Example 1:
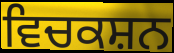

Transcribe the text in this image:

ਵਿਚਕਸ਼ਨ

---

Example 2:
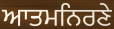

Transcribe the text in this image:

ਆਤਮਨਿਰਣੇ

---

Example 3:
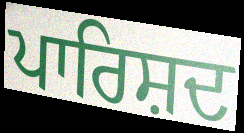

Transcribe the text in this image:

ਪਾਰਿਸ਼ਦ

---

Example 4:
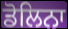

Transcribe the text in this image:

ਡੋਲਿਨਾ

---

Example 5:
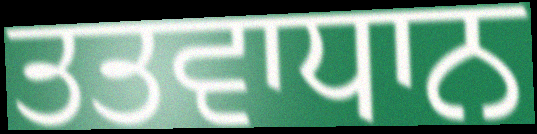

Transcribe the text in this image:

ਤਤਵਾਧਾਨ